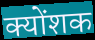
क्योंशक